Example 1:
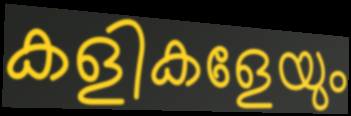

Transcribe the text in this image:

കളികളേയും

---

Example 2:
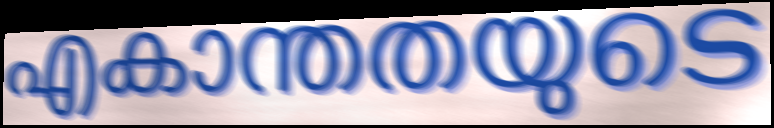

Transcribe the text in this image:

എകാന്തതയുടെ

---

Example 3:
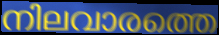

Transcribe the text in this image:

നിലവാരത്തെ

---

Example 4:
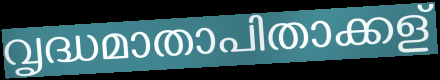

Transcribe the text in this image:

വൃദ്ധമാതാപിതാക്കള്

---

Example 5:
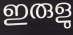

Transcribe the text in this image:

ഇരുളു